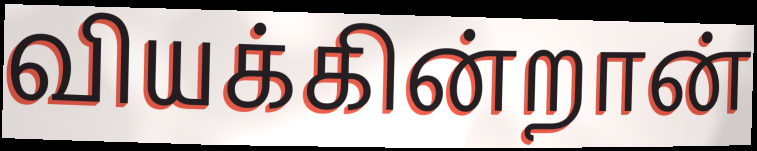
வியக்கின்றான்